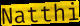
Natthi